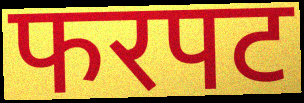
फरपट